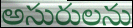
అసురులను